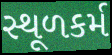
સ્થૂળકર્મ